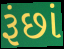
રૂંછાં